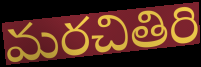
మరచితిరి